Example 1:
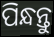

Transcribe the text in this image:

ପିନ୍ଧନ୍ତୁ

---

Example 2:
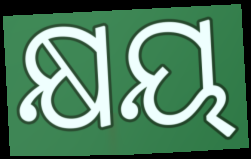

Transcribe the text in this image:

କ୍ଷୟ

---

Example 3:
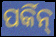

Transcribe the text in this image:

ପର୍କିନ୍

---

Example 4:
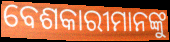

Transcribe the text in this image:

ବେଶକାରୀମାନଙ୍କୁ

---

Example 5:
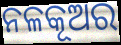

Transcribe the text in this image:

ନଳକୂଅର